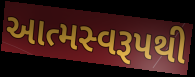
આત્મસ્વરૂપથી